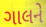
ગાલને